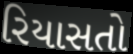
રિયાસતો